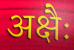
अक्षैः